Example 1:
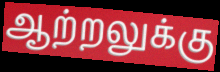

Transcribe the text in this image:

ஆற்றலுக்கு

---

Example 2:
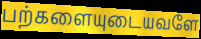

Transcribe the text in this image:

பற்களையுடையவளே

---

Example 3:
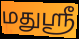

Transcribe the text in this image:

மதுஸ்ரீ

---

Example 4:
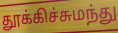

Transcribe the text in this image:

தூக்கிச்சுமந்து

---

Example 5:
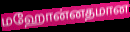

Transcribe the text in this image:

மஹோன்னதமான